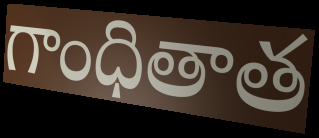
గాంధితాత